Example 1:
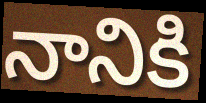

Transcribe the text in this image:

నానికి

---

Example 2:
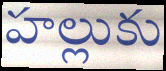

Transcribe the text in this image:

హల్లుకు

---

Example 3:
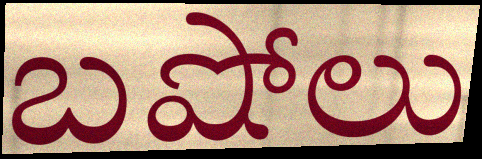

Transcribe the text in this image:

బషోలు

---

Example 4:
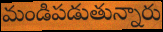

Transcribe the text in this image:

మండిపడుతున్నారు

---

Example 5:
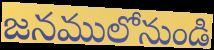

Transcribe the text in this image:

జనములోనుండి